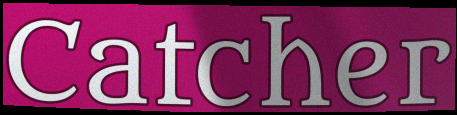
Catcher